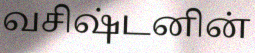
வசிஷ்டனின்